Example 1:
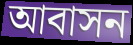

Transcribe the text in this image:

আবাসন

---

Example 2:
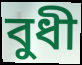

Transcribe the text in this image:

বুধী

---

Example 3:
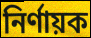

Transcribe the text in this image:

নির্ণায়ক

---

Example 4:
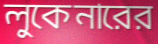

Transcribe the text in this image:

লুকেনারের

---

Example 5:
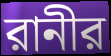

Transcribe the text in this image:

রানীর